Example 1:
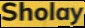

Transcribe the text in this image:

Sholay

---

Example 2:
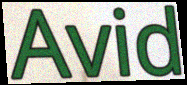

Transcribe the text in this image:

Avid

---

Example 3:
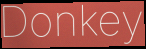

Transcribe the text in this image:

Donkey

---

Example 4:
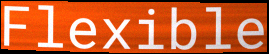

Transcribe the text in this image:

Flexible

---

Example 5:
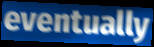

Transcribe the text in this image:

eventually